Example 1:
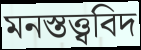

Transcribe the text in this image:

মনস্তত্ত্ববিদ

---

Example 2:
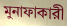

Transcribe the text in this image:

মুনাফাকারী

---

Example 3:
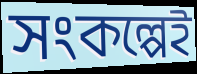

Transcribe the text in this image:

সংকল্পেই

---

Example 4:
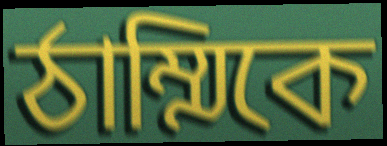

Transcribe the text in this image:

ঠাম্মিকে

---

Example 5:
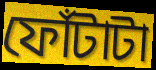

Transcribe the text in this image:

ফোঁটাটা